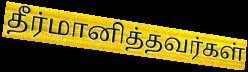
தீர்மானித்தவர்கள்